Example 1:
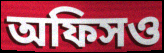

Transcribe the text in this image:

অফিসও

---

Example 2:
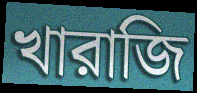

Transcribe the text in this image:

খারাজি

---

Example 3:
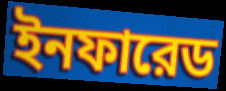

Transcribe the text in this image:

ইনফারেড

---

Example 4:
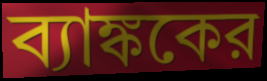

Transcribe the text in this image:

ব্যাঙ্ককের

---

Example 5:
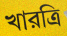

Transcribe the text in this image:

খারত্রি